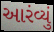
આરંવ્યું